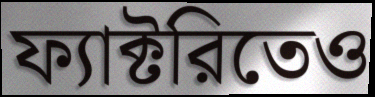
ফ্যাক্টরিতেও